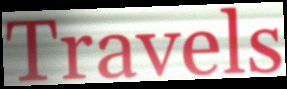
Travels